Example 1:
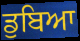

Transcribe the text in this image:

ਡੁਬਿਆ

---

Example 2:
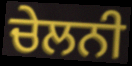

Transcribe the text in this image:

ਚੇਲਨੀ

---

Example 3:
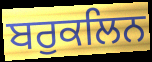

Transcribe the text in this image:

ਬਰੁਕਲਿਨ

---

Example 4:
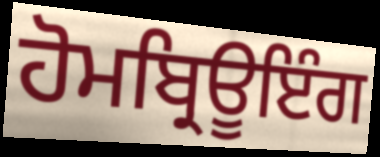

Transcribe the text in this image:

ਹੋਮਬ੍ਰਿਊਇੰਗ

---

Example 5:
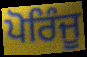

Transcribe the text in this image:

ਪੋਰਿੰਜੂ